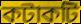
কটাকটি